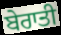
ਬੇਰਾਤੀ